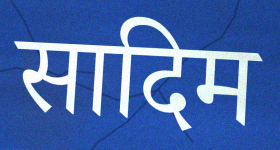
सादिम